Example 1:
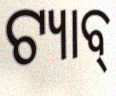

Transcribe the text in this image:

ଟ୍ୟାବ୍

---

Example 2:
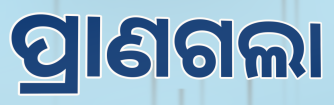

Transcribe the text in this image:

ପ୍ରାଣଗଲା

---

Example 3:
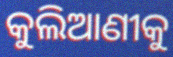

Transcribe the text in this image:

କୁଲିଆଣୀକୁ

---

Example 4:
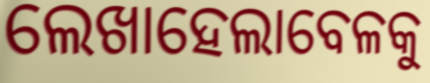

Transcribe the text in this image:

ଲେଖାହେଲାବେଳକୁ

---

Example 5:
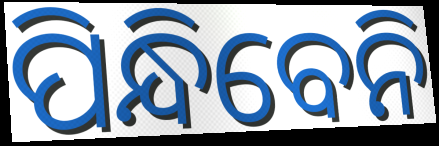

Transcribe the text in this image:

ପିନ୍ଧିବେନି